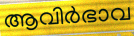
ആവിർഭാവ